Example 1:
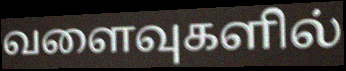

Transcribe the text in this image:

வளைவுகளில்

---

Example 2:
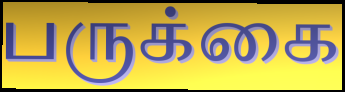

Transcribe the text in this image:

பருக்கை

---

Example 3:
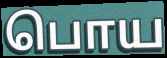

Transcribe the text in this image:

பொய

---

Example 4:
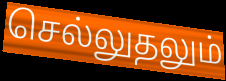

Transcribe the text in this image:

செல்லுதலும்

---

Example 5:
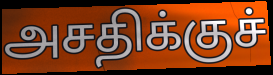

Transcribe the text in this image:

அசதிக்குச்